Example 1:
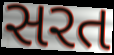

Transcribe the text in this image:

સરત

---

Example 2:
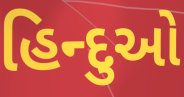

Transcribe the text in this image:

હિન્દુઓ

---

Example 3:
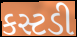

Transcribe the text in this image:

કસ્ટડી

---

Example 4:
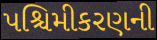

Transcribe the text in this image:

પશ્ચિમીકરણની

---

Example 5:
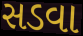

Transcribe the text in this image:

સડવા